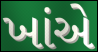
ખાંએ